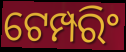
ଟେମ୍ପରିଂ